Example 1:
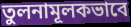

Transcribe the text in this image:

তুলনামূলকভাবে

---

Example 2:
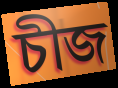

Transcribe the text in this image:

চীজ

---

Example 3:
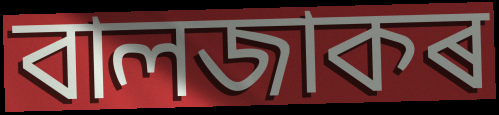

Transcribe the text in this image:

বালজাকৰ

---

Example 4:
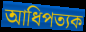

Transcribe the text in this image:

আধিপত্যক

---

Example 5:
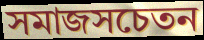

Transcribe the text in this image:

সমাজসচেতন